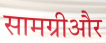
सामग्रीऔर